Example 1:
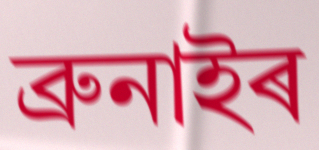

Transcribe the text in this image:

ব্ৰুনাইৰ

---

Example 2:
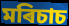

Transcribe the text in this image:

মৰিচাচ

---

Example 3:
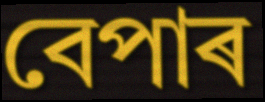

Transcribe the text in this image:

বেপাৰ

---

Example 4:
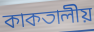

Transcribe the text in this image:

কাকতালীয়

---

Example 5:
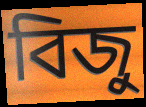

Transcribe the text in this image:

বিজু